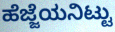
ಹೆಜ್ಜೆಯನಿಟ್ಟು